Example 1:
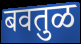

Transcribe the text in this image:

बवतुळ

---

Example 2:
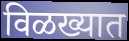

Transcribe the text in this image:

विळख्यात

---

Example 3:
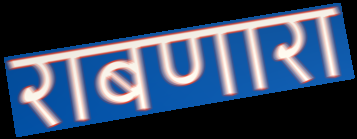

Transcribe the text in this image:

राबणारा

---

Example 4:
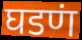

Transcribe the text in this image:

घडणं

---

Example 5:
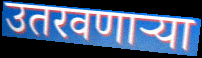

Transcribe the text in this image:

उतरवणाऱ्या